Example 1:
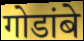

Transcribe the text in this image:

गोडांबे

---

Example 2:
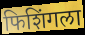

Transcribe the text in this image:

फिशिंगला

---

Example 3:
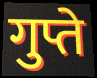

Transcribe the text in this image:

गुप्ते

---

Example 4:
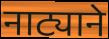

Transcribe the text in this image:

नाट्याने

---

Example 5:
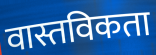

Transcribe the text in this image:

वास्तविकता